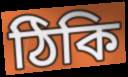
ঠিকি